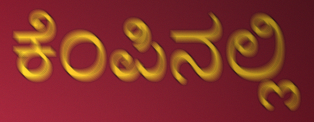
ಕೆಂಪಿನಲ್ಲಿ